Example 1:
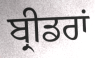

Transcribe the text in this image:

ਬ੍ਰੀਡਰਾਂ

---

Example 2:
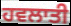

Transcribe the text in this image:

ਹਵਲਾਤੀ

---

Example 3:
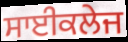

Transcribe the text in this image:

ਸਾਈਕਲੇਜ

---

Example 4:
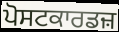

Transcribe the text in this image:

ਪੋਸਟਕਾਰਡਜ਼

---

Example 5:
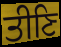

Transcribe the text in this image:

ਤੀਣਿ